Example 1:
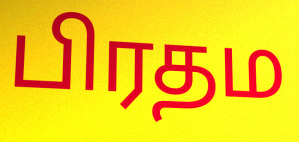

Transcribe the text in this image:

பிரதம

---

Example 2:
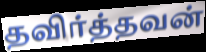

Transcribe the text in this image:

தவிர்த்தவன்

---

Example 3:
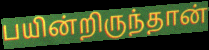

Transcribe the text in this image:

பயின்றிருந்தான்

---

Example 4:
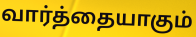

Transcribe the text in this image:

வார்த்தையாகும்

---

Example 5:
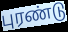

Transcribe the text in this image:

புரண்டு